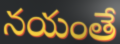
నయంతే